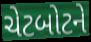
ચેટબોટને